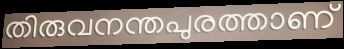
തിരുവനന്തപുരത്താണ്